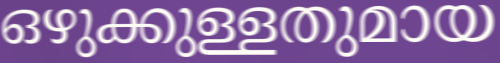
ഒഴുക്കുള്ളതുമായ